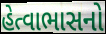
હેત્વાભાસનો